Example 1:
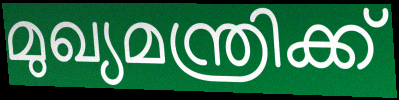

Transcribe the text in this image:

മുഖ്യമന്ത്രിക്ക്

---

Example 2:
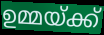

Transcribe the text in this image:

ഉമ്മയ്ക്ക്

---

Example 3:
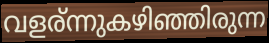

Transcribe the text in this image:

വളര്ന്നുകഴിഞ്ഞിരുന്ന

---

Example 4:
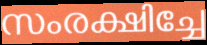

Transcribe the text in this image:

സംരക്ഷിച്ചേ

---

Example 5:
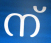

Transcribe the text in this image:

ന്